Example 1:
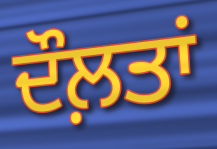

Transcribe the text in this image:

ਦੌਲ਼ਤਾਂ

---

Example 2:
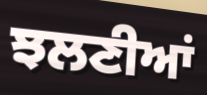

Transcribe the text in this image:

ਝਲਣੀਆਂ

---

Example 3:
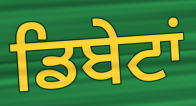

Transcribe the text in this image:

ਡਿਬੇਟਾਂ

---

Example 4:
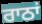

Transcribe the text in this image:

ਰਾਠਾਂ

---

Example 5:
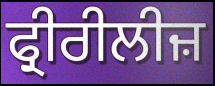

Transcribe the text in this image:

ਫ੍ਰੀਰੀਲੀਜ਼